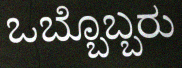
ಒಬ್ಬೊಬ್ಬರು